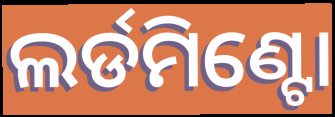
ଲର୍ଡମିଣ୍ଟୋ